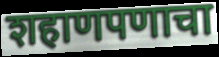
शहाणपणाचा